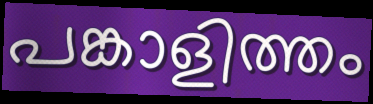
പങ്കാളിത്തം